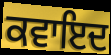
ਕਵਾਇਦ